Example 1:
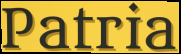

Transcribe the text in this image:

Patria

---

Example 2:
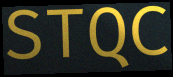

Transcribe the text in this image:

STQC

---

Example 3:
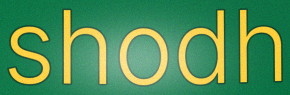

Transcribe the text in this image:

shodh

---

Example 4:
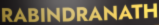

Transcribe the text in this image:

RABINDRANATH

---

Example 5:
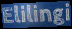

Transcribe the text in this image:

Elilingi